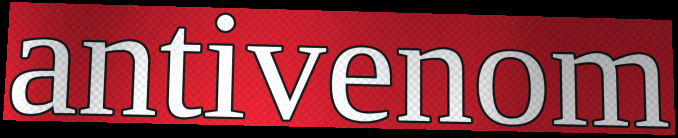
antivenom